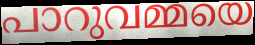
പാറുവമ്മയെ